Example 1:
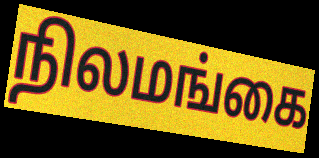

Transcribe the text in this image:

நிலமங்கை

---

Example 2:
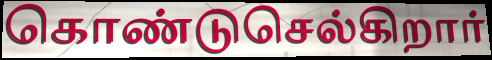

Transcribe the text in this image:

கொண்டுசெல்கிறார்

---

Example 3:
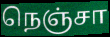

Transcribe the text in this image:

நெஞ்சா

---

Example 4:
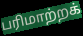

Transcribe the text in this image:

பரிமாற்றக்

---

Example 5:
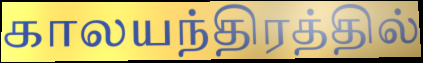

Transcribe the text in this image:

காலயந்திரத்தில்